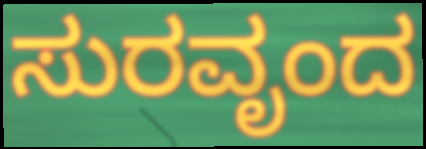
ಸುರವೃಂದ